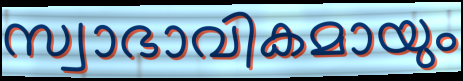
സ്വാഭാവികമായും